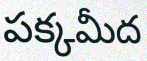
పక్కమీద